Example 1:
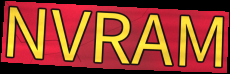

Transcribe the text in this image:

NVRAM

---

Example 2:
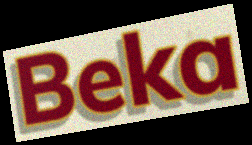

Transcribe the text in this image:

Beka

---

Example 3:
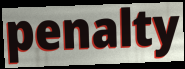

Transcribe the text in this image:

penalty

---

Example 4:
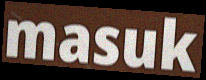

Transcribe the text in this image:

masuk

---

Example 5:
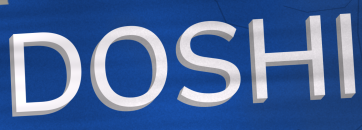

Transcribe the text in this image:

DOSHI